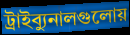
ট্রাইব্যুনালগুলোয়